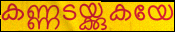
കണ്ണടയ്ക്കുകയേ